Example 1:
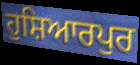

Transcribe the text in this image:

ਹੁਸ਼ਿਆਰਪੁਰ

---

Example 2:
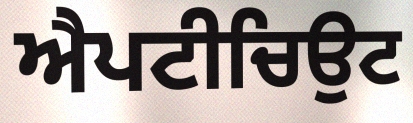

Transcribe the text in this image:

ਐਪਟੀਚਿਉਟ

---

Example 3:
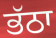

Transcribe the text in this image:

ਭੱਠਾ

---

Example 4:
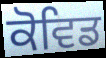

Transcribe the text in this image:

ਕੋਵਿਡ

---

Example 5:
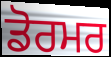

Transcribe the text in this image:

ਡੋਰਮਰ